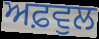
ਅਫ਼ਵੁਲ